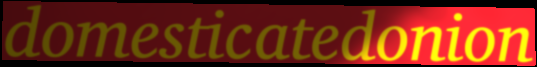
domesticatedonion